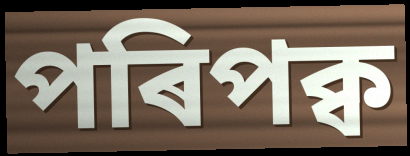
পৰিপক্ব